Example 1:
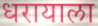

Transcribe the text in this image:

धरायाला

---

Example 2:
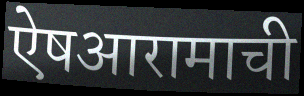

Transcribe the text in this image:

ऐषआरामाची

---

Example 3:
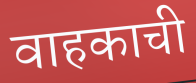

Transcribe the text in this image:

वाहकाची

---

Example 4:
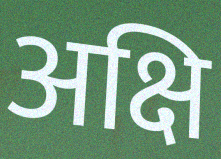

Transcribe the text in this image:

अक्षि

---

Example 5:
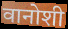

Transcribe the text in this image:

वानोशी